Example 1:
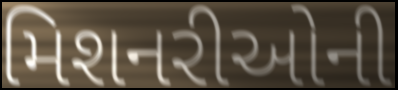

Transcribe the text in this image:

મિશનરીઓની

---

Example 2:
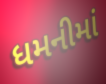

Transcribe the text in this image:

ધમનીમાં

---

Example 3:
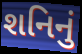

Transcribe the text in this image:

શનિનું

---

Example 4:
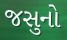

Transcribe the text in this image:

જસુનો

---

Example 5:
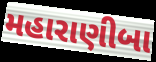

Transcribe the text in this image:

મહારાણીબા